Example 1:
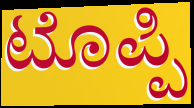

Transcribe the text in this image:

ಟೊಪ್ಪಿ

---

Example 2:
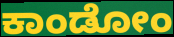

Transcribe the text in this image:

ಕಾಂಡೋಂ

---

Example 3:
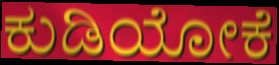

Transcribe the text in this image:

ಕುಡಿಯೋಕೆ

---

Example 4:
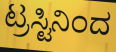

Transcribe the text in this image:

ಟ್ರಸ್ಟಿನಿಂದ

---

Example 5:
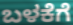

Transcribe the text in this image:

ಬಳಕೆಗೆ